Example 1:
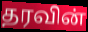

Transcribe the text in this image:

தரவின்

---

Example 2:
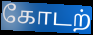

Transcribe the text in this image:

கோடற்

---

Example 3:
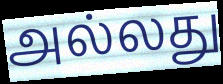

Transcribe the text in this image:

அல்லது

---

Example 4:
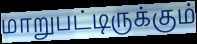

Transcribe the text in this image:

மாறுபட்டிருக்கும்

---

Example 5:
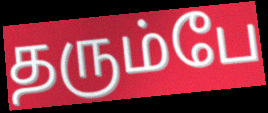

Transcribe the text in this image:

தரும்பே